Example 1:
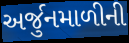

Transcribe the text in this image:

અર્જુનમાળીની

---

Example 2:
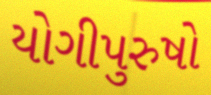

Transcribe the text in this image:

યોગીપુરુષો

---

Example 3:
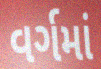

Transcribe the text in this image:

વર્ગમાં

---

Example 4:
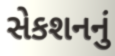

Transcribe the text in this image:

સેકશનનું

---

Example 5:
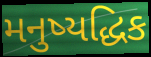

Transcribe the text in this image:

મનુષ્યદ્ધિક